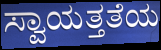
ಸ್ವಾಯತ್ತತೆಯ